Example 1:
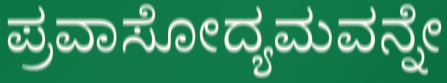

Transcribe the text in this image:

ಪ್ರವಾಸೋದ್ಯಮವನ್ನೇ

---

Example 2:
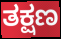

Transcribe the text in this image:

ತಕ್ಷಣ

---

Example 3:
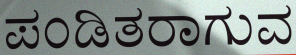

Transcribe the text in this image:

ಪಂಡಿತರಾಗುವ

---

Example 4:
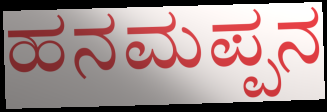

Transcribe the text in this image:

ಹನಮಪ್ಪನ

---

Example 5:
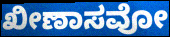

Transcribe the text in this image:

ಖೀಣಾಸವೋ